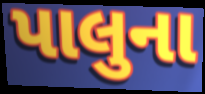
પાલુના